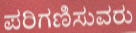
ಪರಿಗಣಿಸುವರು